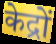
केद्रों